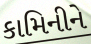
કામિનીને